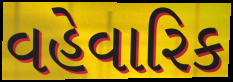
વહેવારિક